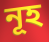
নূহ